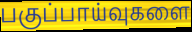
பகுப்பாய்வுகளை